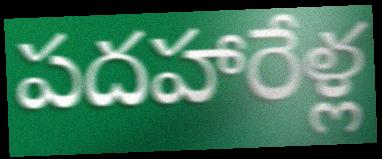
పదహారేళ్ల